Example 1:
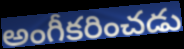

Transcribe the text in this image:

అంగీకరించడు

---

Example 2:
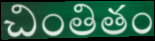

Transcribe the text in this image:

చింతితం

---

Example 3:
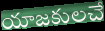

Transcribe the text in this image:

యాజకులచే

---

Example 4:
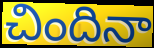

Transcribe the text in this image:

చిందినా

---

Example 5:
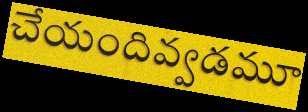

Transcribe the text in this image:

చేయందివ్వడమూ